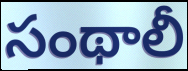
సంథాలీ